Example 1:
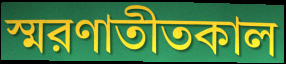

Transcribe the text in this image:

স্মরণাতীতকাল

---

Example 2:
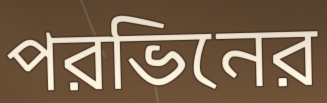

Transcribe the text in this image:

পরভিনের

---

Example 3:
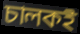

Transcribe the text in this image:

চালকই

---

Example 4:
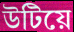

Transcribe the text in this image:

উটিয়ে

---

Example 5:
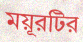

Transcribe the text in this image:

ময়ূরটির